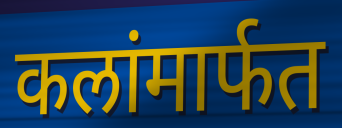
कलांमार्फत